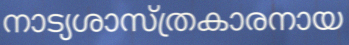
നാട്യശാസ്ത്രകാരനായ